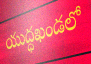
యుద్ధఖండలో